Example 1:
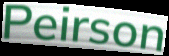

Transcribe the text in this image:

Peirson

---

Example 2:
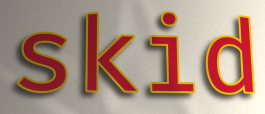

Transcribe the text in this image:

skid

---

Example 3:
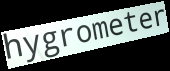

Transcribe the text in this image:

hygrometer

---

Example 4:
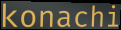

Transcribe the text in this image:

konachi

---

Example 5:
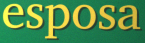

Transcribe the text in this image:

esposa